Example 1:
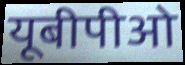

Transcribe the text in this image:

यूबीपीओ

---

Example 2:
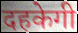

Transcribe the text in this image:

दहकेगी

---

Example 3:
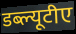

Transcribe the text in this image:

डब्ल्यूटीए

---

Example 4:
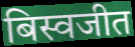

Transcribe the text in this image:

बिस्वजीत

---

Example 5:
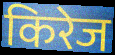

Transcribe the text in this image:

किरेज